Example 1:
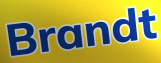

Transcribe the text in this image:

Brandt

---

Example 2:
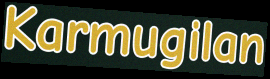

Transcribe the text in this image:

Karmugilan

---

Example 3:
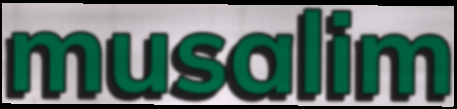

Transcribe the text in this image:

musalim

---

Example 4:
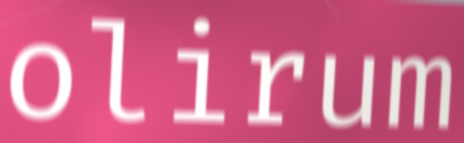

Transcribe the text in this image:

olirum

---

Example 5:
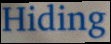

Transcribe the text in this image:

Hiding